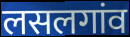
लसलगांव